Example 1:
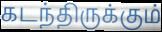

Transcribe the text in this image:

கடந்திருக்கும்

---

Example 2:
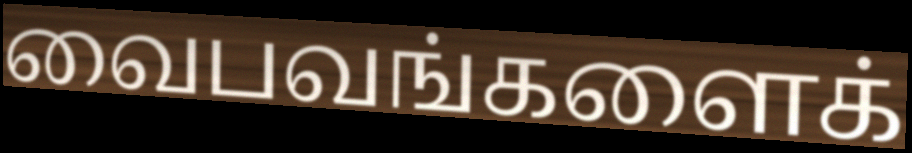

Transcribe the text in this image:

வைபவங்களைக்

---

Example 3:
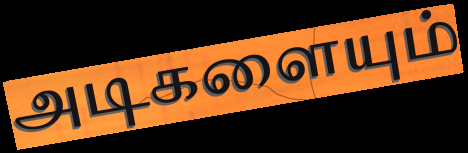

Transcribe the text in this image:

அடிகளையும்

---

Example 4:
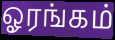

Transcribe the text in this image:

ஓரங்கம்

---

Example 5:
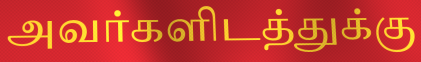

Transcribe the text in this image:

அவர்களிடத்துக்கு